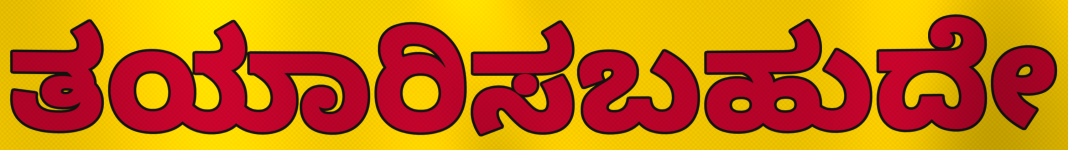
ತಯಾರಿಸಬಹುದೇ